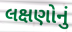
લક્ષણોનું